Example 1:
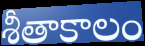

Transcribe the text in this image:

శీతాకాలం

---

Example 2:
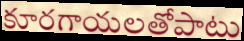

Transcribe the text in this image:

కూరగాయలతోపాటు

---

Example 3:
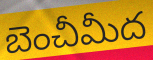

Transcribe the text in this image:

బెంచీమీద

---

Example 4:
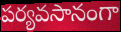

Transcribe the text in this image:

పర్యవసానంగా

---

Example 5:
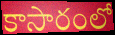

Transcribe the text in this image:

కాసారంలో